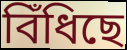
বিঁধিছে